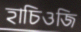
হাচিওজি